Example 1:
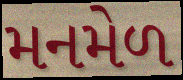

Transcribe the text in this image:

મનમેળ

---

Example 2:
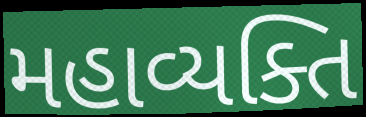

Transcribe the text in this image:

મહાવ્યક્તિ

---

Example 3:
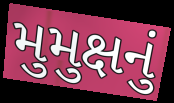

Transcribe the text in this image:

મુમુક્ષનું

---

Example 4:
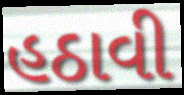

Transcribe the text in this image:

હઠાવી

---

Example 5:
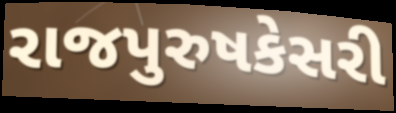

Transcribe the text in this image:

રાજપુરુષકેસરી